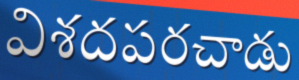
విశదపరచాడు